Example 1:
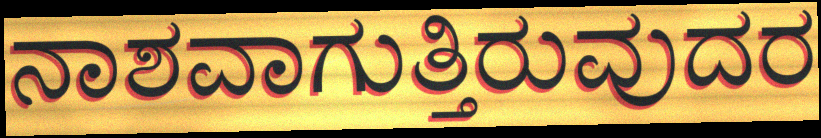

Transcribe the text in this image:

ನಾಶವಾಗುತ್ತಿರುವುದರ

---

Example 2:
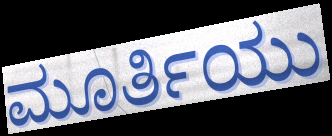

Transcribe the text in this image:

ಮೂರ್ತಿಯು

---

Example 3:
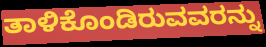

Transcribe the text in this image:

ತಾಳಿಕೊಂಡಿರುವವರನ್ನು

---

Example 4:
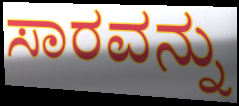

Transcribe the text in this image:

ಸಾರವನ್ನು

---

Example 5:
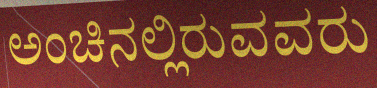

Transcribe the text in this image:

ಅಂಚಿನಲ್ಲಿರುವವರು